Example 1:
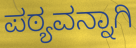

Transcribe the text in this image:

ಪಠ್ಯವನ್ನಾಗಿ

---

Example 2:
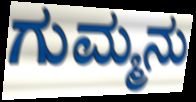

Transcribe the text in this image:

ಗುಮ್ಮನು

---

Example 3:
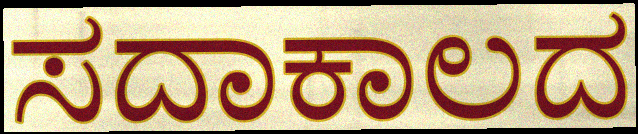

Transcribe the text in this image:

ಸದಾಕಾಲದ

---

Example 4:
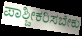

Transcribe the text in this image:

ಪಾಶ್ಚೀಕರಿಸಬೇಕು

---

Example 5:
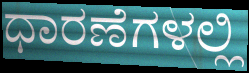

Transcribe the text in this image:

ಧಾರಣೆಗಳಲ್ಲಿ